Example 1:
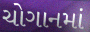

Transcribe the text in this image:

ચોગાનમાં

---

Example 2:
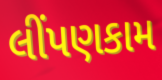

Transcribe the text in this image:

લીંપણકામ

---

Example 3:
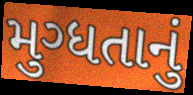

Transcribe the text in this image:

મુગ્ધતાનું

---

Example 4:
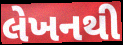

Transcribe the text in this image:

લેખનથી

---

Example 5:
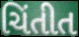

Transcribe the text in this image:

ચિંતીત